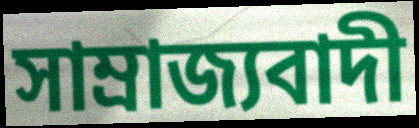
সাম্ৰাজ্যবাদী